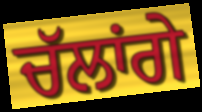
ਚੱਲਾਂਗੇ